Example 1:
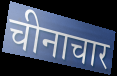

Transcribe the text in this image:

चीनाचार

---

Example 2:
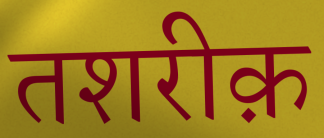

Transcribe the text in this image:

तशरीक़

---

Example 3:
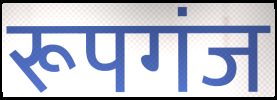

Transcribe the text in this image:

रूपगंज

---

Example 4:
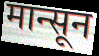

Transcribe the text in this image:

मान्सून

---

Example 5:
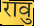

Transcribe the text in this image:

रावु